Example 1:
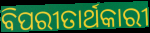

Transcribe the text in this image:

ବିପରୀତାର୍ଥକାରୀ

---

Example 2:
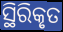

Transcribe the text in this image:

ସ୍ଥିରିକୃତ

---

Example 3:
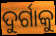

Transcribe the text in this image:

ଦୁର୍ଗାକୁ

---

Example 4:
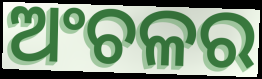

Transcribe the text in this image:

ଅଂଚଳର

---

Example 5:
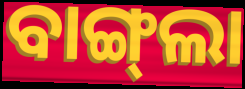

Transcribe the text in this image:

ବାଙ୍ଗ୍‍ଲା